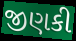
જીણકી